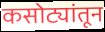
कसोट्यांतून